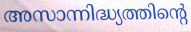
അസാന്നിദ്ധ്യത്തിന്റെ